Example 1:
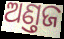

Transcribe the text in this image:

ଅଣ୍ତଜ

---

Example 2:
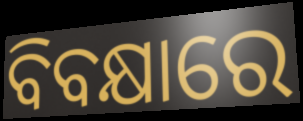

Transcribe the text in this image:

ବିବକ୍ଷାରେ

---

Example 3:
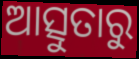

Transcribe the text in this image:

ଆତ୍ସୁତାରୁ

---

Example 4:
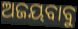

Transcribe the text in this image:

ଅଜୟବାବୁ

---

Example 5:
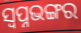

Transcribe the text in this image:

ସ୍ୱପ୍ନଭଙ୍ଗର